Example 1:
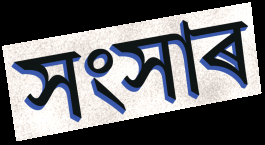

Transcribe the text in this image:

সংসাৰ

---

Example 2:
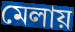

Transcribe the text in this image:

মেলায়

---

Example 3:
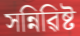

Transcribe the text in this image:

সন্নিৱিষ্ট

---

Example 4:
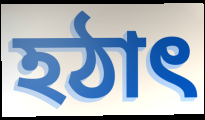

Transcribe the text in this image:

হঠাৎ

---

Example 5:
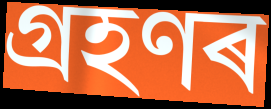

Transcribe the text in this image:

গ্ৰহণৰ